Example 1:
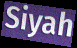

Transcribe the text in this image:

Siyah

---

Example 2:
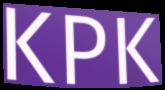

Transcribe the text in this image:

KPK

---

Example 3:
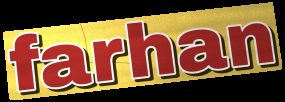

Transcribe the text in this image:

farhan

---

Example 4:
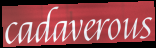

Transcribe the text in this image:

cadaverous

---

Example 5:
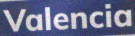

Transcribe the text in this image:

Valencia